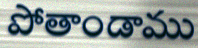
పోతాండాము